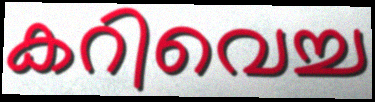
കറിവെച്ച